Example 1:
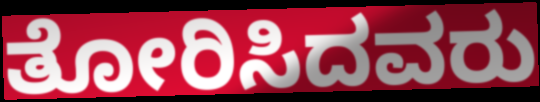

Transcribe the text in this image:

ತೋರಿಸಿದವರು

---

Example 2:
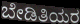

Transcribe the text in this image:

ಬೇಡಿತಿಯರ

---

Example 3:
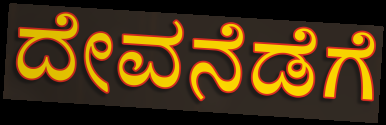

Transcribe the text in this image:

ದೇವನೆಡೆಗೆ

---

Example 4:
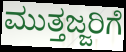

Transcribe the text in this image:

ಮುತ್ತಜ್ಜರಿಗೆ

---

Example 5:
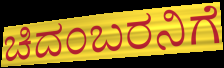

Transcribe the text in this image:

ಚಿದಂಬರನಿಗೆ